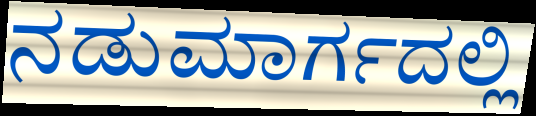
ನಡುಮಾರ್ಗದಲ್ಲಿ